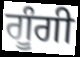
ਗੂੰਗੀ